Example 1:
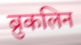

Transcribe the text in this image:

ब्रुकलिन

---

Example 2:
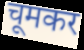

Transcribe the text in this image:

चूमकर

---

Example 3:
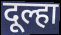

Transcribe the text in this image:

दूल्हा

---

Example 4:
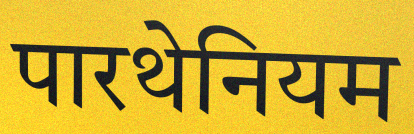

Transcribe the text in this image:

पारथेनियम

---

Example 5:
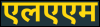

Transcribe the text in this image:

एलएएम